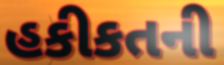
હકીકતની